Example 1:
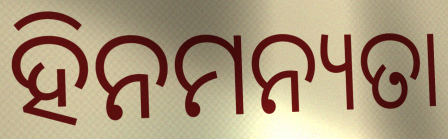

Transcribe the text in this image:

ହିନମନ୍ୟତା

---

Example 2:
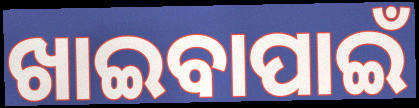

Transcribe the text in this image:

ଖାଇବାପାଇଁ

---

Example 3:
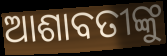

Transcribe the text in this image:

ଆଶାବତୀଙ୍କୁ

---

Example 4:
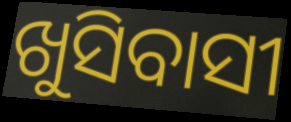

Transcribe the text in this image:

ଖୁସିବାସୀ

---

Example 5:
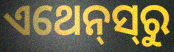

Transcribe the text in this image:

ଏଥେନ୍‌ସ୍‌ରୁ